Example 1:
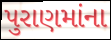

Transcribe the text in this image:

પુરાણમાંના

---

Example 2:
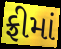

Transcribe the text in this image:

ફ્રીમાં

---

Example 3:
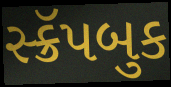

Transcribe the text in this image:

સ્ક્રૅપબુક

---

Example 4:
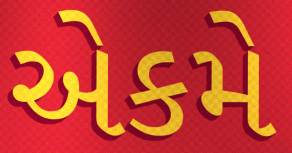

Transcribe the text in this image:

એકમે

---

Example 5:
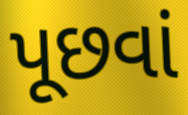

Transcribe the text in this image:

પૂછવાં